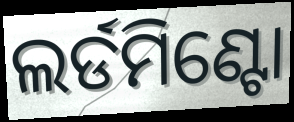
ଲର୍ଡମିଣ୍ଟୋ